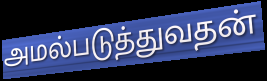
அமல்படுத்துவதன்